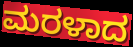
ಮರಳಾದ